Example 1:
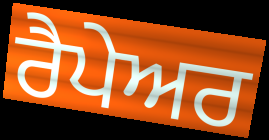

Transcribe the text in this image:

ਰੈਪੇਅਰ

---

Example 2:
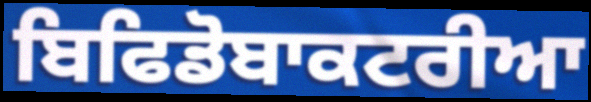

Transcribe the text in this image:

ਬਿਫਿਡੋਬਾਕਟਰੀਆ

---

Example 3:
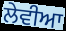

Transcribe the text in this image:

ਲੇਵੀਆ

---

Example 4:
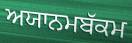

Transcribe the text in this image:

ਅਯਾਨਮਬੱਕਮ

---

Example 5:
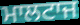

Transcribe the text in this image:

ਮਾਲਟਾਜ